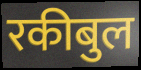
रकीबुल